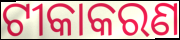
ଟୀକାକରଣ